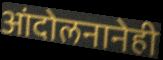
आंदोलनानेही